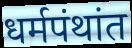
धर्मपंथांत